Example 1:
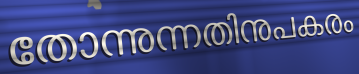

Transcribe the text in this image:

തോന്നുന്നതിനുപകരം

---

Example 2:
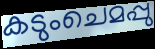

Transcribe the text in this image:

കടുംചെമപ്പു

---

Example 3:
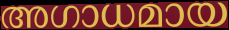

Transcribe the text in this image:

അഗാധമായ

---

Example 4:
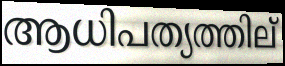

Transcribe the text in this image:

ആധിപത്യത്തില്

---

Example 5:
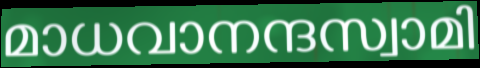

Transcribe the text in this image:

മാധവാനന്ദസ്വാമി